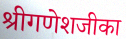
श्रीगणेशजीका